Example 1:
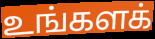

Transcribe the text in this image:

உங்களக்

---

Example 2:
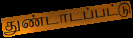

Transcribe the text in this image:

துண்டாடப்பட்டு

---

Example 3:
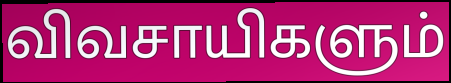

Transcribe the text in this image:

விவசாயிகளும்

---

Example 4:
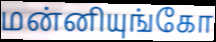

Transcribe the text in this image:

மன்னியுங்கோ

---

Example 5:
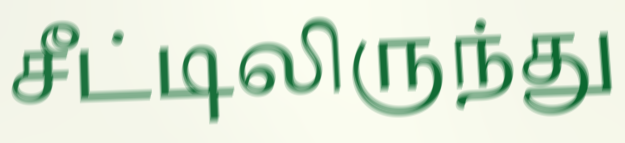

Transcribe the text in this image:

சீட்டிலிருந்து